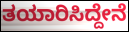
ತಯಾರಿಸಿದ್ದೇನೆ